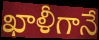
ఖాళీగానే